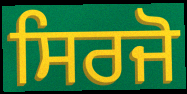
ਸਿਰਜੋ